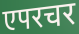
एपरचर